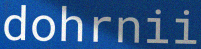
dohrnii